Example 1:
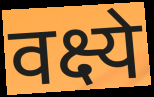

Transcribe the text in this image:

वक्ष्ये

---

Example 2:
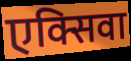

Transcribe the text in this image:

एक्सिवा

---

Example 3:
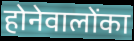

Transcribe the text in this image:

होनेवालोंका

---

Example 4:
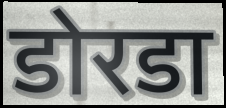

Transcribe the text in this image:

डोरडा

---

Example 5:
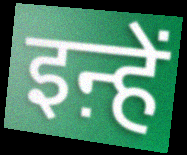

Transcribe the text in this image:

इऩ्हें